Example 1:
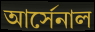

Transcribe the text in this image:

আর্সেনাল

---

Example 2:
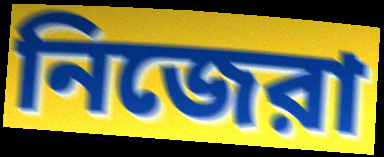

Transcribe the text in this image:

নিজেরা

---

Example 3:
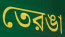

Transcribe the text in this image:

তেরঙা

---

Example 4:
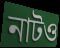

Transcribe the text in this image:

নাটও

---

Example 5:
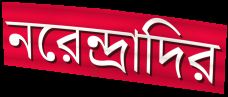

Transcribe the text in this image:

নরেন্দ্রাদির